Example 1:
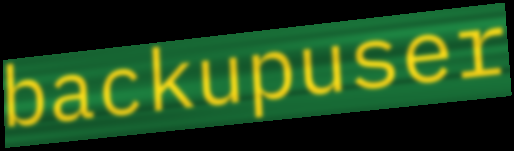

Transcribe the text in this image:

backupuser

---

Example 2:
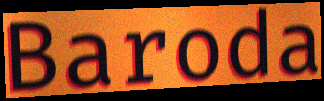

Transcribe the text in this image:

Baroda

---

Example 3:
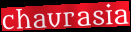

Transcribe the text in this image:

chaurasia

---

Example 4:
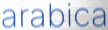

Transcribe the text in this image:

arabica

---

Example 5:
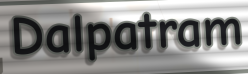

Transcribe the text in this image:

Dalpatram